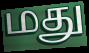
மது